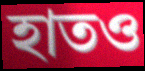
হাতও